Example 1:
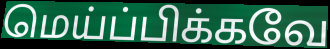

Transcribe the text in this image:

மெய்ப்பிக்கவே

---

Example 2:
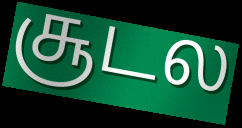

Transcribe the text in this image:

சூடல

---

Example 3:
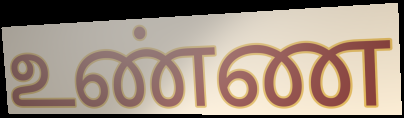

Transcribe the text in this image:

உண்ண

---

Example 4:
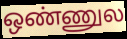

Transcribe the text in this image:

ஒண்ணுல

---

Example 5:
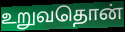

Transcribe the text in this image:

உறுவதொன்